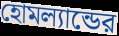
হোমল্যান্ডের